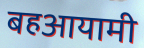
बहआयामी